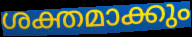
ശക്തമാക്കും